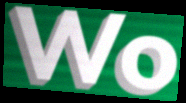
Wo